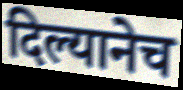
दिल्यानेच